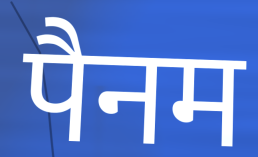
पैनम